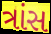
ત્રાંસ